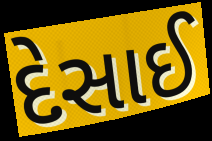
દેસાઈ